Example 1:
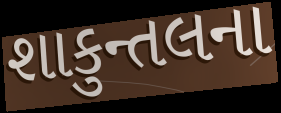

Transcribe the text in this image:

શાકુન્તલના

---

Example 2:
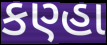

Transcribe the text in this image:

કણ્હા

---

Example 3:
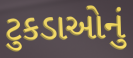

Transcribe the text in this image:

ટુકડાઓનું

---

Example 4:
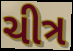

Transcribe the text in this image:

ચીત્ર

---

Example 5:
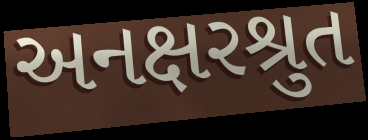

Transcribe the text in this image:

અનક્ષરશ્રુત